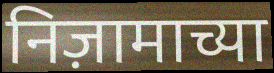
निज़ामाच्या